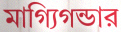
মাগ্যিগন্ডার